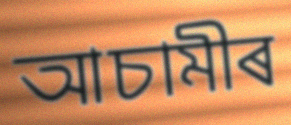
আচামীৰ